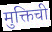
मुक्तिची